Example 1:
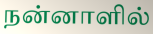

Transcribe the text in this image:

நன்னாளில்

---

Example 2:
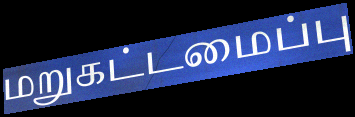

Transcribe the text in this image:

மறுகட்டமைப்பு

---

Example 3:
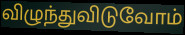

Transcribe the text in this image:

விழுந்துவிடுவோம்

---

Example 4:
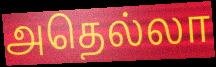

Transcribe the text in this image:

அதெல்லா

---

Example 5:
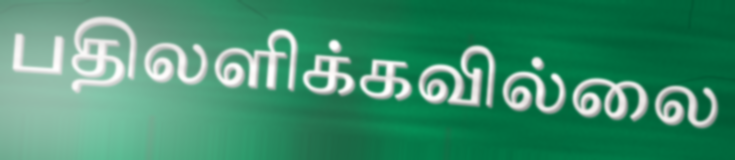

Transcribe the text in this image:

பதிலளிக்கவில்லை